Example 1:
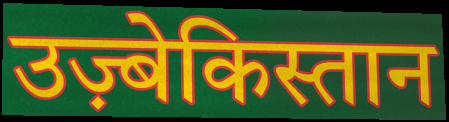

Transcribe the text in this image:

उज़्बेकिस्तान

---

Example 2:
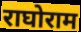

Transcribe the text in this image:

राघोराम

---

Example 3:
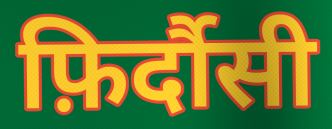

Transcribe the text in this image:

फ़िर्दौसी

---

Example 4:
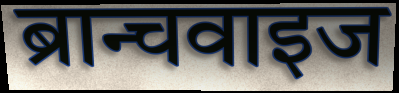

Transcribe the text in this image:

ब्रान्चवाइज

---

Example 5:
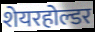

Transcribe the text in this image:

शेयरहोल्डर